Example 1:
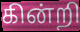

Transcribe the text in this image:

கின்றி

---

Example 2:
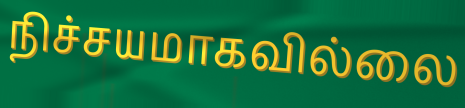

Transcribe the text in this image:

நிச்சயமாகவில்லை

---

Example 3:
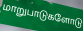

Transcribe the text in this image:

மாறுபாடுகளோடு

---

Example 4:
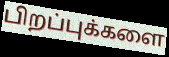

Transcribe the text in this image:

பிறப்புக்களை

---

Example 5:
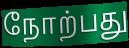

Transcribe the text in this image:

நோற்பது